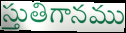
స్తుతిగానము